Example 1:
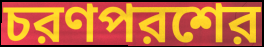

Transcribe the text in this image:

চরণপরশের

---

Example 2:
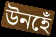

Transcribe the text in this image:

উনহেঁ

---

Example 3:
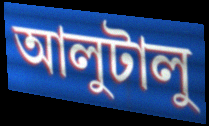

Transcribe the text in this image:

আলুটালু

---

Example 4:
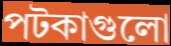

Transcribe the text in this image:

পটকাগুলো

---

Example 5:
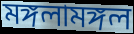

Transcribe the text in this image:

মঙ্গলামঙ্গল